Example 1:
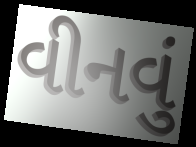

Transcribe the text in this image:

વીનવું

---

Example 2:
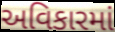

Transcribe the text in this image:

અવિકારમાં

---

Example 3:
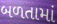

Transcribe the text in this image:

બળતામાં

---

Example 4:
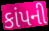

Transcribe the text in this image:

કાંપની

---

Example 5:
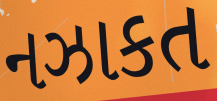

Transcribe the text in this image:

નઝાકત